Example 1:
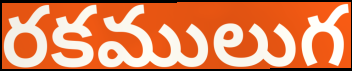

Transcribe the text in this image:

రకములుగ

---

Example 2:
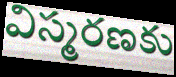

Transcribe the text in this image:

విస్మరణకు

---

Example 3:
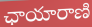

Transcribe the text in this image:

ఛాయారాణి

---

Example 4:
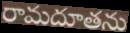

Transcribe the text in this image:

రామదూతను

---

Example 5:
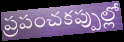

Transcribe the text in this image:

ప్రపంచకప్పుల్లో